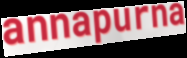
annapurna